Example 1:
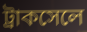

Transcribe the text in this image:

ট্রাকসেলে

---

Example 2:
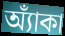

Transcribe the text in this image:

অ্যাঁকা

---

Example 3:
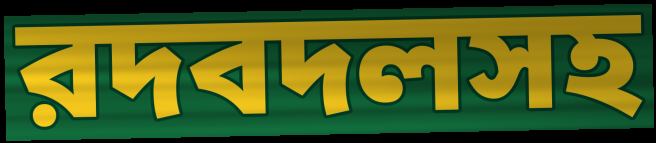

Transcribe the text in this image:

রদবদলসহ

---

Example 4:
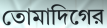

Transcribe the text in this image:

তোমাদিগের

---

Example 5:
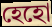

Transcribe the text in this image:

হেহো